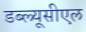
डब्ल्यूसीएल